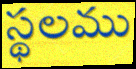
స్థలము